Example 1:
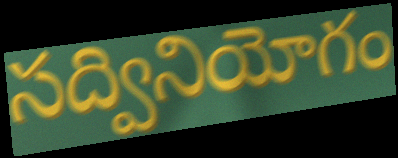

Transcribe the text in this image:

సద్వినియోగం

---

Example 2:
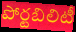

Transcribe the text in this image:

పోర్టబిలిటీ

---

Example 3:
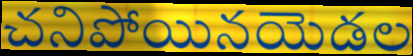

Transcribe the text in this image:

చనిపోయినయెడల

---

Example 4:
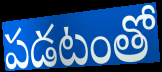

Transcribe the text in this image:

పడటంతో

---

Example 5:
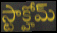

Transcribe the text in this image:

స్టాక్హోమ్